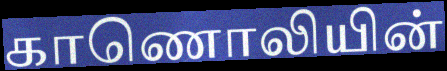
காணொலியின்